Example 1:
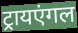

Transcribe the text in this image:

ट्रायएंगल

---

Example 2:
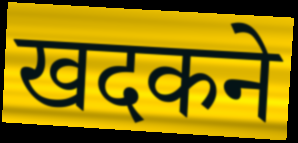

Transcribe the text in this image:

खदकने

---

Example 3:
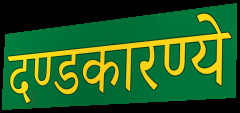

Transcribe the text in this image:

दण्डकारण्ये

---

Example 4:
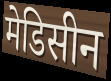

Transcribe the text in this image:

मेडिसीन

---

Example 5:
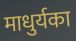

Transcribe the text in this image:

माधुर्यका